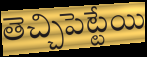
తెచ్చిపెట్టేయి